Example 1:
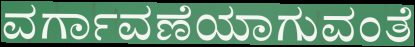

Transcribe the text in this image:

ವರ್ಗಾವಣೆಯಾಗುವಂತೆ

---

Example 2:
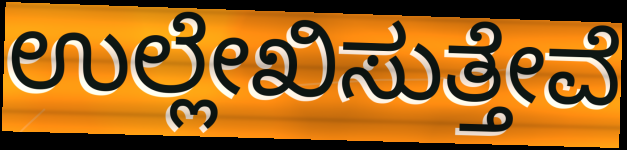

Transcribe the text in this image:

ಉಲ್ಲೇಖಿಸುತ್ತೇವೆ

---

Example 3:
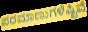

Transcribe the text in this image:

ಪರಮಾಣುಗಳೆಷ್ಟಿವೆ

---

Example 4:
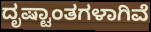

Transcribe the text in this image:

ದೃಷ್ಟಾಂತಗಳಾಗಿವೆ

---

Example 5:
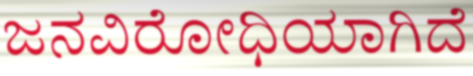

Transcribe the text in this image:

ಜನವಿರೋಧಿಯಾಗಿದೆ